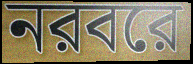
নরবরে